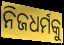
ନିଜଧର୍ମକୁ